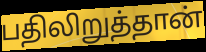
பதிலிறுத்தான்